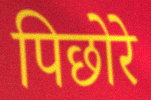
पिछोरे